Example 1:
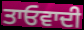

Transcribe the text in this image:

ਤਾਓਵਾਦੀ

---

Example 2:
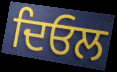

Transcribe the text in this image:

ਦਿਓਲ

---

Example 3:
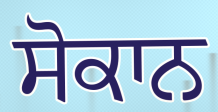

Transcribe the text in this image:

ਸੋਕਾਨ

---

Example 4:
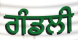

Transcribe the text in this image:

ਗੰਡਲੀ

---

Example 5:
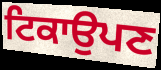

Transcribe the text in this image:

ਟਿਕਾਉਪਣ